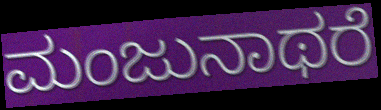
ಮಂಜುನಾಥರೆ